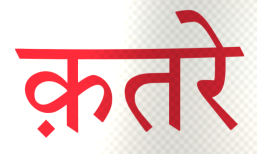
क़तरे